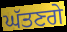
ਘੱਤਣਗੇ